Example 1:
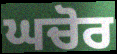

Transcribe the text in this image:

ਘਚੋਰ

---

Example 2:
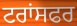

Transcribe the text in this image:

ਟਰਾਂਸਫਰ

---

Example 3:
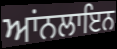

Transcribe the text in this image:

ਆਂਨਲਾਇਨ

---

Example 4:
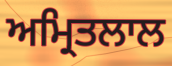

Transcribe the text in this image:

ਅਮ੍ਰਿਤਲਾਲ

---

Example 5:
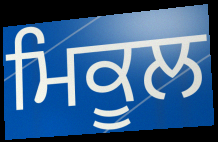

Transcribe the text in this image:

ਮਿਕੂਲ